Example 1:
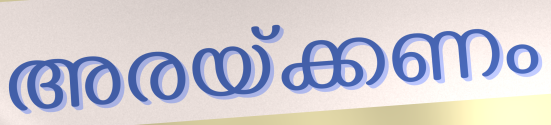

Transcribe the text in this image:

അരയ്‌ക്കണം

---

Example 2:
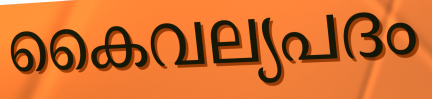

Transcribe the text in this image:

കൈവല്യപദം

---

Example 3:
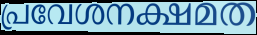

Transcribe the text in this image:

പ്രവേശനക്ഷമത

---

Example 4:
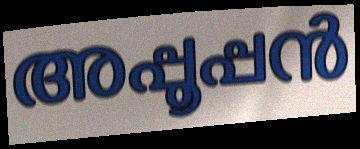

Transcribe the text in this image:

അപ്പൂപ്പൻ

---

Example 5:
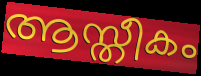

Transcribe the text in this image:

ആസ്തീകം